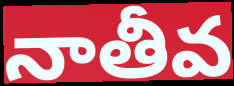
నాతీవ